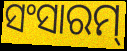
ସଂସାରମ୍